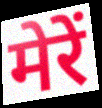
मेरें